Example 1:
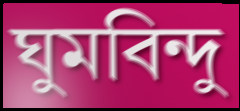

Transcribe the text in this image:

ঘুমবিন্দু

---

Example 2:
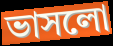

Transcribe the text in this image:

ভাসলো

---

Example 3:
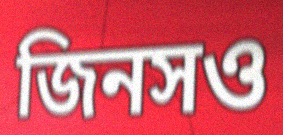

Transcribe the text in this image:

জিনসও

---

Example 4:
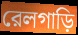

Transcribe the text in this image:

রেলগাড়ি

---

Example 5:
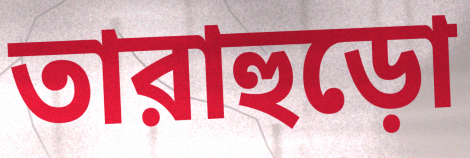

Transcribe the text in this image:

তারাহুড়ো